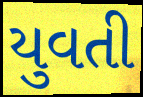
યુવતી